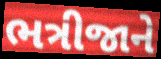
ભત્રીજાને